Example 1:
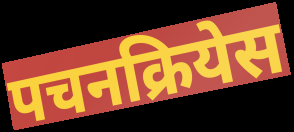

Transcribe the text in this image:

पचनक्रियेस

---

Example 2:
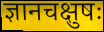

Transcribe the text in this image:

ज्ञानचक्षुषः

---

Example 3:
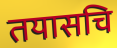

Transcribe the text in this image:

तयासचि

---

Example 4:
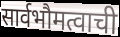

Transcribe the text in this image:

सार्वभौमत्वाची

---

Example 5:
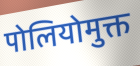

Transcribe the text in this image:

पोलियोमुक्त